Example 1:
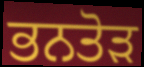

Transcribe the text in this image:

ਭਨਤੋੜ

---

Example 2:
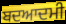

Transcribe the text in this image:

ਬਦਆਦਮੀ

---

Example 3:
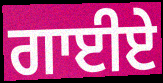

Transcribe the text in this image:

ਗਾਈਏ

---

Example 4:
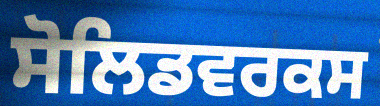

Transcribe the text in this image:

ਸੋਲਿਡਵਰਕਸ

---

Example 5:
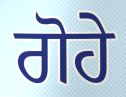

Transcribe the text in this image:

ਗੋਹੇ